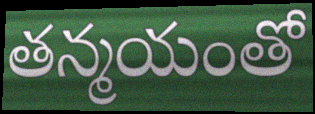
తన్మయంతో